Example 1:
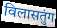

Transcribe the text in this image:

विलासतुंग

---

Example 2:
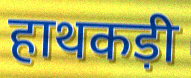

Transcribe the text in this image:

हाथकड़ी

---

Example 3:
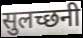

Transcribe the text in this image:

सुलच्छनी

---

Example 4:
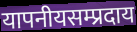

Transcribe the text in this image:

यापनीयसम्प्रदाय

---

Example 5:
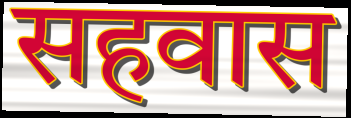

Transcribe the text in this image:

सहवास